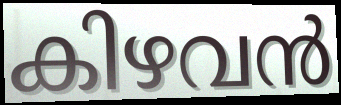
കിഴവൻ